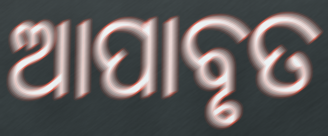
ଆପାବୃତ